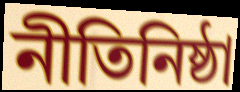
নীতিনিষ্ঠা